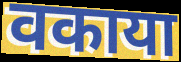
वकाया